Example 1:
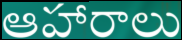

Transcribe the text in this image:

ఆహారాలు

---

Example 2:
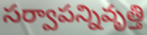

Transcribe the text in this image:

సర్వాపన్నివృత్తి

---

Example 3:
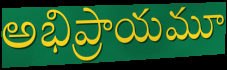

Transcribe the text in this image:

అభిప్రాయమూ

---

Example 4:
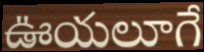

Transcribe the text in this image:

ఊయలూగే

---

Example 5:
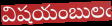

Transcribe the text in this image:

విషయంబులఁ